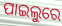
ପାଇଲୁରେ